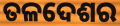
ତଳଦେଶର